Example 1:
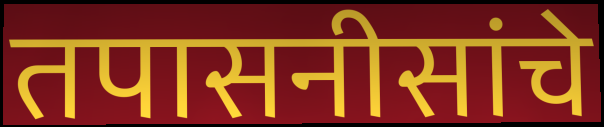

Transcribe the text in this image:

तपासनीसांचे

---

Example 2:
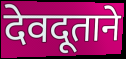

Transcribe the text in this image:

देवदूताने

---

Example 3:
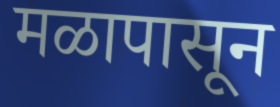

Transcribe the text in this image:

मळापासून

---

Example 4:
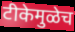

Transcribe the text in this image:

टीकेमुळेच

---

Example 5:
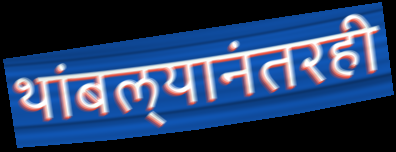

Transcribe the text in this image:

थांबल्यानंतरही